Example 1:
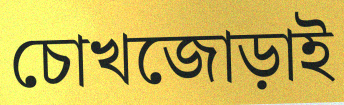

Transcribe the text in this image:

চোখজোড়াই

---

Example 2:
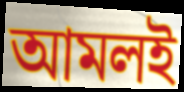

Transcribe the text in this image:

আমলই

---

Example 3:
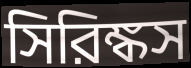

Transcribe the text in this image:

সিরিঙ্কস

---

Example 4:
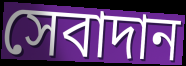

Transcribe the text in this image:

সেবাদান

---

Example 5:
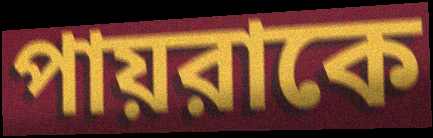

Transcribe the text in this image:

পায়রাকে